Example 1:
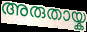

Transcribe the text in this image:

അരുതായ്ക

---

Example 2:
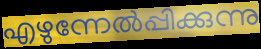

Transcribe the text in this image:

എഴുന്നേൽപ്പിക്കുന്നു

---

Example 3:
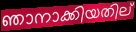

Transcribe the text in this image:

ഞാനാക്കിയതില്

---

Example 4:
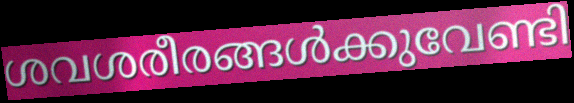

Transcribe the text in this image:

ശവശരീരങ്ങൾക്കുവേണ്ടി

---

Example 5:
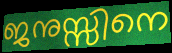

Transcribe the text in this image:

ജനുസ്സിനെ